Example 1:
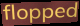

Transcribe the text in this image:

flopped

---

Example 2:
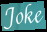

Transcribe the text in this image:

Joke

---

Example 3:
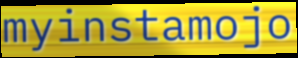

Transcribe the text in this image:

myinstamojo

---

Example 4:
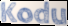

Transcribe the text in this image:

Kodu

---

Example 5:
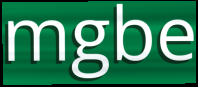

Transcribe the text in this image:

mgbe